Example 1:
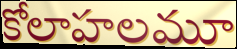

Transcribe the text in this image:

కోలాహలమూ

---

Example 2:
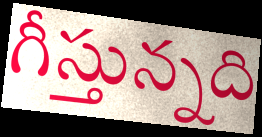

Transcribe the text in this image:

గీస్తున్నది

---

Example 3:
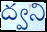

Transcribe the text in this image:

ద్వని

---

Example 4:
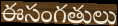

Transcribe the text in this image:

ఈసంగతులు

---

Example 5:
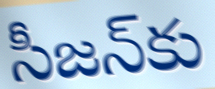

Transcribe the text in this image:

సీజన్‌కు